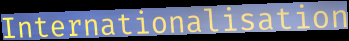
Internationalisation